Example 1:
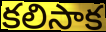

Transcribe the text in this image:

కలిసాక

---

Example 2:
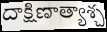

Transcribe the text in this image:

దాక్షిణాత్యాశ్చ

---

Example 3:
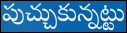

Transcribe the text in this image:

పుచ్చుకున్నట్టు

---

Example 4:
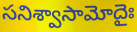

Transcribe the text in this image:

సనిశ్వాసామోదైః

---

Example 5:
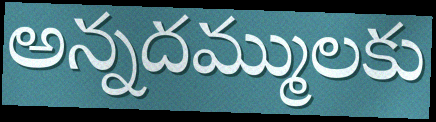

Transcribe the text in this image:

అన్నదమ్ములకు